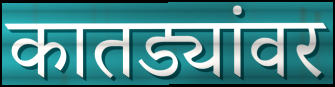
कातड्यांवर